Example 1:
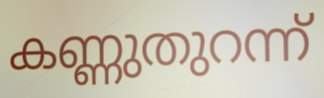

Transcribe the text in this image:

കണ്ണുതുറന്ന്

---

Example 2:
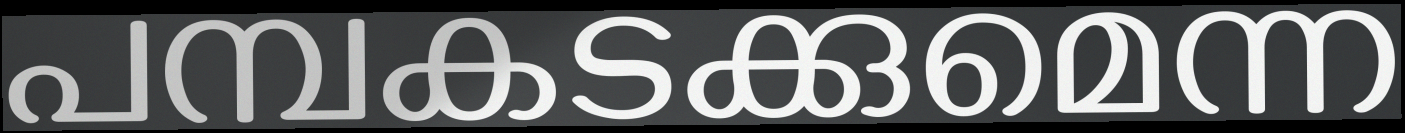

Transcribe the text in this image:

പമ്പകടക്കുമെന്ന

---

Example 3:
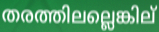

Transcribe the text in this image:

തരത്തിലല്ലെങ്കില്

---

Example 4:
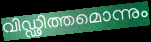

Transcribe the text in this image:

വിഡ്ഢിത്തമൊന്നും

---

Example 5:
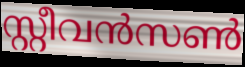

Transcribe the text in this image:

സ്റ്റീവൻസൺ